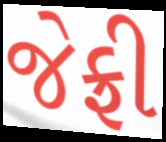
જેફ્રી